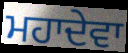
ਮਹਾਦੇਵਾ